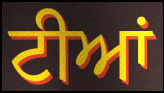
ਟੀਆਂ